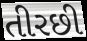
તીરછી